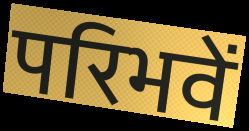
परिभवें